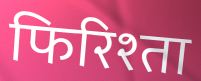
फिरिश्ता